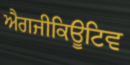
ਐਗਜੀਕਿਊਟਿਵ